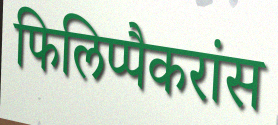
फिलिप्पैकरांस